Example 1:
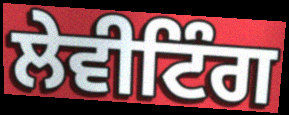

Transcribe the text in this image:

ਲੇਵੀਟਿੰਗ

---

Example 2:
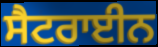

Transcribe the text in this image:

ਸੈਟਰਾਈਨ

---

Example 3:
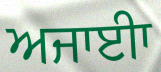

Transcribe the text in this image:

ਅਜਾਈਾ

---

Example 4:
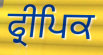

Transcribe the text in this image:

ਫ੍ਰੀਪਿਕ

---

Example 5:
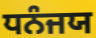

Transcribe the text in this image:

ਧਨੰਜਯ